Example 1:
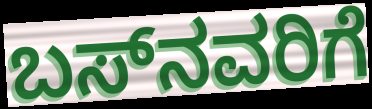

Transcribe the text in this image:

ಬಸ್‌ನವರಿಗೆ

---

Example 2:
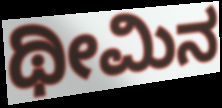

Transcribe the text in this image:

ಥೀಮಿನ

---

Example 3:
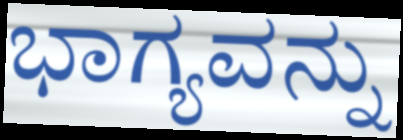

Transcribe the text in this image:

ಭಾಗ್ಯವನ್ನು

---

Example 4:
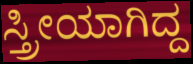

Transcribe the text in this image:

ಸ್ತ್ರೀಯಾಗಿದ್ದ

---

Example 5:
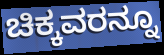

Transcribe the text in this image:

ಚಿಕ್ಕವರನ್ನೂ